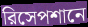
রিসেপশানে